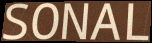
SONAL